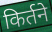
किर्तने